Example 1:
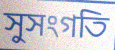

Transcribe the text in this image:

সুসংগতি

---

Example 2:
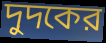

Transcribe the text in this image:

দুদকের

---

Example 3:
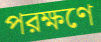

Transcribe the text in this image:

পরক্ষণে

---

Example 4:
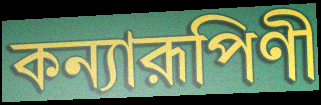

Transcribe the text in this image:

কন্যারূপিণী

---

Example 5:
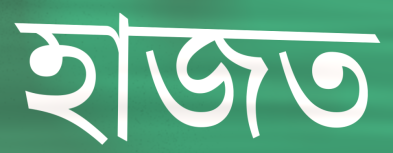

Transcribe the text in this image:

হাজত